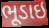
ભૂડાઇ